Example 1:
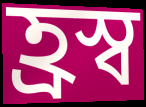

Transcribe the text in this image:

হ্রস্ব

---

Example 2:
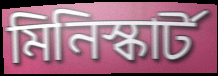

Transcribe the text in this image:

মিনিস্কার্ট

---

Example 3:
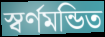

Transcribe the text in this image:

স্বর্ণমন্ডিত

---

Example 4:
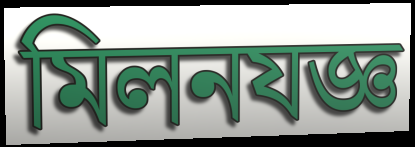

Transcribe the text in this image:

মিলনযজ্ঞ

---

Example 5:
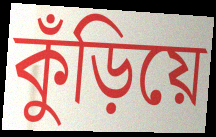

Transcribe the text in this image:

কুঁড়িয়ে